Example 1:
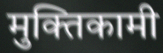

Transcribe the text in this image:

मुक्तिकामी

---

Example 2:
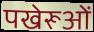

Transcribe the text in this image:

पखेरूओं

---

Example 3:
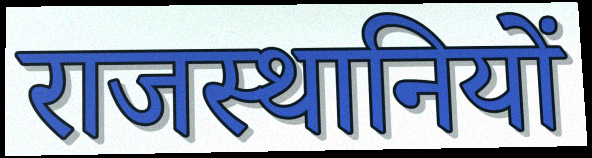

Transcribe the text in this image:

राजस्थानियों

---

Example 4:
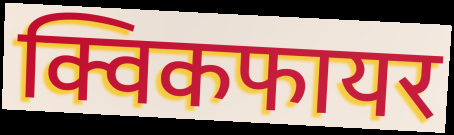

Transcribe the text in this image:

क्विकफायर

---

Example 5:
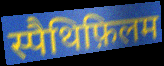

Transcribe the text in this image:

स्पैथिफ़िलम